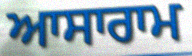
ਆਸਾਰਾਮ